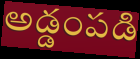
అడ్డంపడి